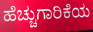
ಹೆಚ್ಚುಗಾರಿಕೆಯ